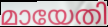
മായേതി